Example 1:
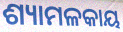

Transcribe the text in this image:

ଶ୍ୟାମଳକାୟ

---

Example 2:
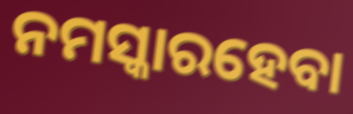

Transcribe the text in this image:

ନମସ୍କାରହେବା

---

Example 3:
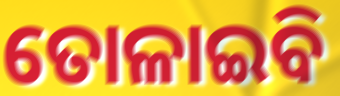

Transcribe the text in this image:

ତୋଳାଇବି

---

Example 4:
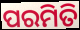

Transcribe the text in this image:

ପରମିତି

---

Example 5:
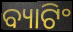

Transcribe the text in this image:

ବ୍ୟାଟିଂ